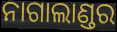
ନାଗାଲାଣ୍ଡର